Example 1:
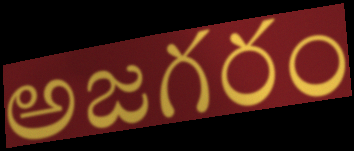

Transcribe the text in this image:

అజగరం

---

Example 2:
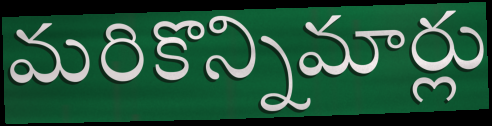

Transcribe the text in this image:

మరికొన్నిమార్లు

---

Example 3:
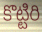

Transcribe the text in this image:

కొట్టిరి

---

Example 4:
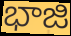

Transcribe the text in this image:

భాజి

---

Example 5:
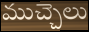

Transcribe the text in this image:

ముచ్చెలు